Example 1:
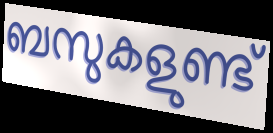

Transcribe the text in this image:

ബസുകളുണ്ട്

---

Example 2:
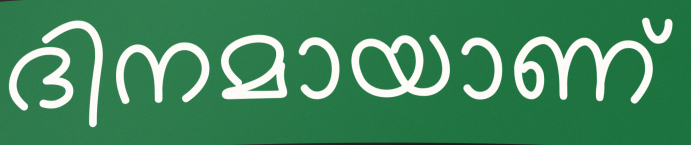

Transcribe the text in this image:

ദിനമായാണ്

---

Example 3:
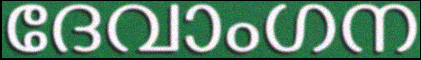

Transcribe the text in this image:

ദേവാംഗന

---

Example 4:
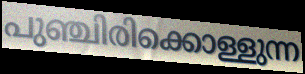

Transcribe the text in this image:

പുഞ്ചിരിക്കൊള്ളുന്ന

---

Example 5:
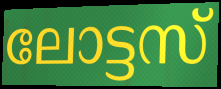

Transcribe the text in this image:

ലോട്ടസ്